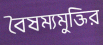
বৈষম্যমুক্তির